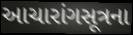
આચારાંગસૂત્રના